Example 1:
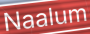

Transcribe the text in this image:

Naalum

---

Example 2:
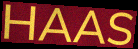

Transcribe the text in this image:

HAAS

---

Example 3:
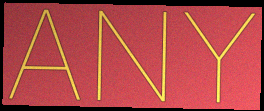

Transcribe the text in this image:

ANY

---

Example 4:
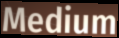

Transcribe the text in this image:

Medium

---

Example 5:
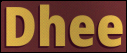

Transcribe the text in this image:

Dhee